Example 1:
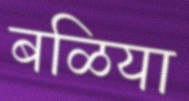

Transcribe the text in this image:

बळिया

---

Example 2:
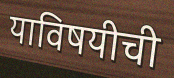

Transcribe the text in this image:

याविषयीची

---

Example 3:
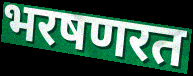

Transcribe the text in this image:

भरषणरत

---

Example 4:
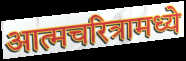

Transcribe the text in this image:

आत्मचरित्रामध्ये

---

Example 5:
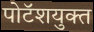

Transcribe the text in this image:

पोटॅशयुक्त